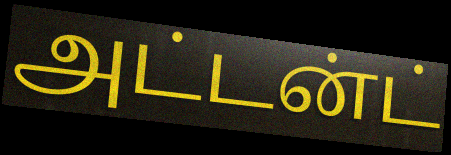
அட்டன்ட்